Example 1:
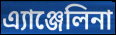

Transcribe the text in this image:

এ্যাঞ্জেলিনা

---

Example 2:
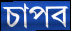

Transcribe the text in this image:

চাপব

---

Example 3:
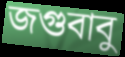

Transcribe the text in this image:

জগুবাবু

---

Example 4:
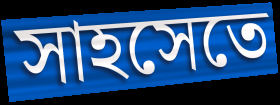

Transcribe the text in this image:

সাহসেতে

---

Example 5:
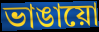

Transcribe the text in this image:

ভাঙায়ো